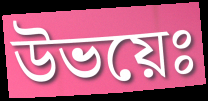
উভয়েঃ